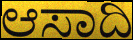
ಆಸಾದಿ